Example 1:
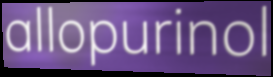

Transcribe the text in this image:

allopurinol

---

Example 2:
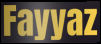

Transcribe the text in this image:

Fayyaz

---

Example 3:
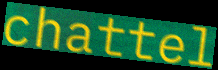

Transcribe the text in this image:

chattel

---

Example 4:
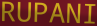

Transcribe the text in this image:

RUPANI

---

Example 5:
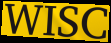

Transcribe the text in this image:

WISC